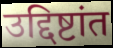
उद्दिष्टांत